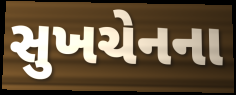
સુખચેનના